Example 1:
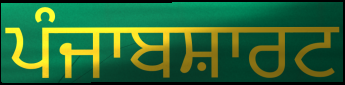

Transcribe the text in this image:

ਪੰਜਾਬਸ਼ਾਰਟ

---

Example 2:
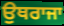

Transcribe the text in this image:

ਉਥਰਾਜਾ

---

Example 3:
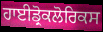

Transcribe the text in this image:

ਹਾਈਡ੍ਰੋਕਲੋਰਿਕਸ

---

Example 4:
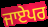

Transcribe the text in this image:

ਜਾਏਪਰ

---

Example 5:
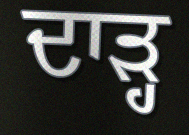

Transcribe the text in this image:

ਦਾੜ੍ਹ